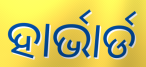
ହାର୍ଭାର୍ଡ